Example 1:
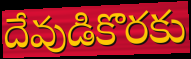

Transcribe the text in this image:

దేవుడికొరకు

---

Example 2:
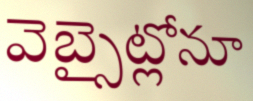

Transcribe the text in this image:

వెబ్సైట్లోనూ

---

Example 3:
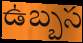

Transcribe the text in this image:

ఉబ్బస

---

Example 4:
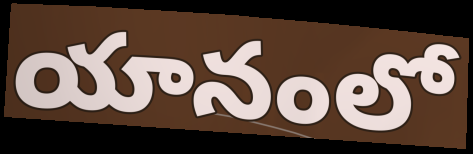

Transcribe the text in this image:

యానంలో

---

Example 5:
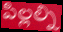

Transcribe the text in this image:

పిల్లల్ని